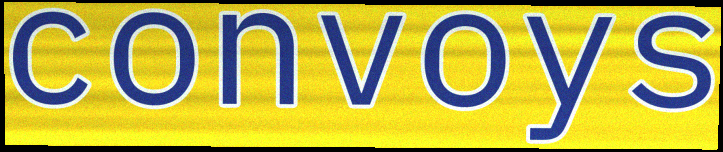
convoys